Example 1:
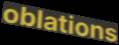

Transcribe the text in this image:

oblations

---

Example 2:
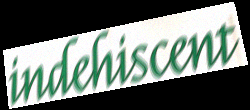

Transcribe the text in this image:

indehiscent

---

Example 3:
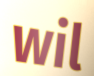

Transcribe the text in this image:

wil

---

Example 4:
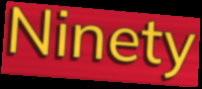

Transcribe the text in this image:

Ninety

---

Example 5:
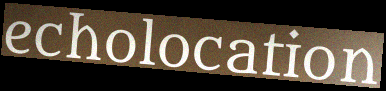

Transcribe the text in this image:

echolocation